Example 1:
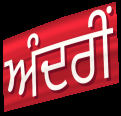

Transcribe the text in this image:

ਅੰਦਰੀਂ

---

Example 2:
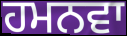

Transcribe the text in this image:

ਹਮਨਵਾ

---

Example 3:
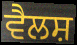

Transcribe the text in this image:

ਵੈਲਸ਼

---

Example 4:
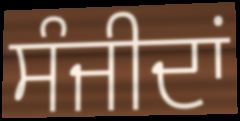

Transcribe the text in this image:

ਸੰਜੀਦਾਂ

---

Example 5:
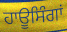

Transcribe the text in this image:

ਹਾਊਸਿੰਗਾਂ